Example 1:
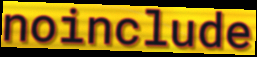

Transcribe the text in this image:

noinclude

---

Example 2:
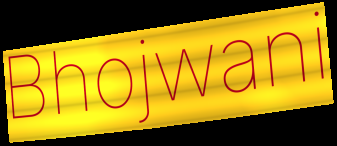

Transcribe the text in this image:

Bhojwani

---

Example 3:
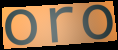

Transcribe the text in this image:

oro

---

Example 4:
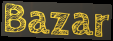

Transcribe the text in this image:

Bazar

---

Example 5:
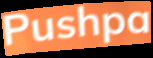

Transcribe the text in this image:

Pushpa